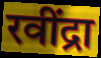
रवींद्रा